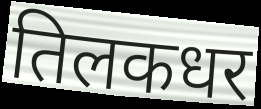
तिलकधर